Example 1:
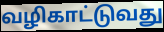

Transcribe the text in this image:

வழிகாட்டுவது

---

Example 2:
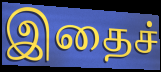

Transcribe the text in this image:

இதைச்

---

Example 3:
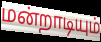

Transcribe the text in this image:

மன்றாடியும்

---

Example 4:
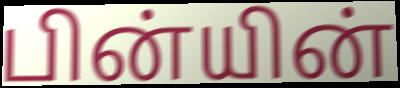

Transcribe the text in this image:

பின்யின்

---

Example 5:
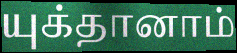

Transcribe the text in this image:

யுக்தானாம்